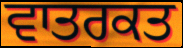
ਵਾਤਰਕਤ